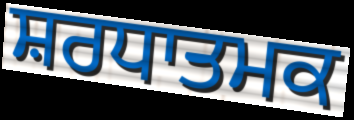
ਸ਼ਰਧਾਤਮਕ